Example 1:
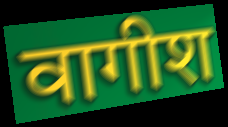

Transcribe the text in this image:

वागीश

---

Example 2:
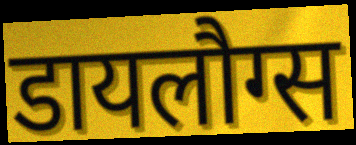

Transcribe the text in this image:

डायलौग्स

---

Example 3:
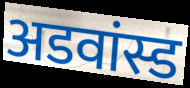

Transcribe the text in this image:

अडवांस्ड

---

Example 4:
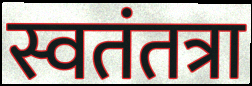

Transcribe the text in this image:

स्वतंतत्रा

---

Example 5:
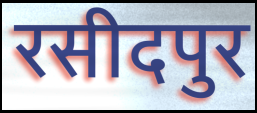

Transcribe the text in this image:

रसीदपुर